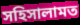
সহিসালামত